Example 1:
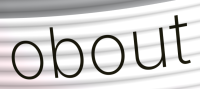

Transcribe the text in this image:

obout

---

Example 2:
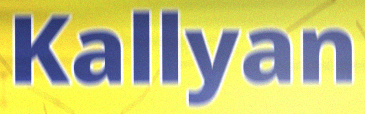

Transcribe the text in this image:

Kallyan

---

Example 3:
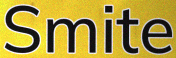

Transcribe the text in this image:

Smite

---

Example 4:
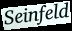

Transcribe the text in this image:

Seinfeld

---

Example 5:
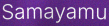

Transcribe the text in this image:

Samayamu